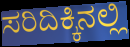
ಸರಿದಿಕ್ಕಿನಲ್ಲಿ